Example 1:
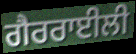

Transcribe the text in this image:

ਗੈਰਰਾਈਲੀ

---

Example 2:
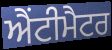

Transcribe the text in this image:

ਐਂਟੀਮੈਟਰ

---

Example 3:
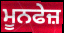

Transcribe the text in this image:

ਮੂਨਫੇਜ਼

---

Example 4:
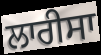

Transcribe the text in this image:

ਲਾਰੀਸਾ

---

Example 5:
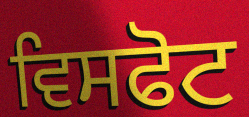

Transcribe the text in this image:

ਵਿਸਫੋਟ